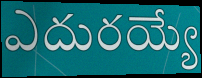
ఎదురయ్యే